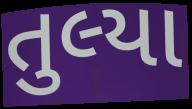
તુલ્યા